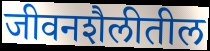
जीवनशैलीतील